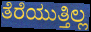
ತೆರೆಯುತ್ತಿಲ್ಲ